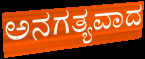
ಅನಗತ್ಯವಾದ